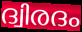
ദ്വിരദം